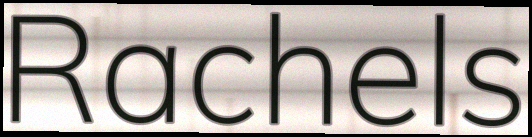
Rachels